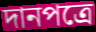
দানপত্রে